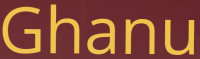
Ghanu